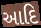
આદિ